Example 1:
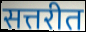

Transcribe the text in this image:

सत्तरीत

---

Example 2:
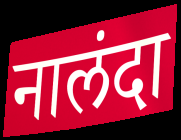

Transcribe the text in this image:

नालंदा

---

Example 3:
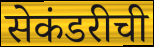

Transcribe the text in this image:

सेकंडरीची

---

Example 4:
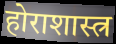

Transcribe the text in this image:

होराशास्त्र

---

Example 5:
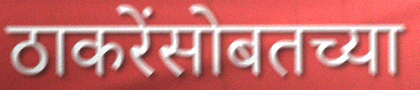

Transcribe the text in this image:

ठाकरेंसोबतच्या